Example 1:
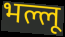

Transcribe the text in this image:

भल्लू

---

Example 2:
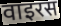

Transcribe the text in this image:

वाइरस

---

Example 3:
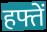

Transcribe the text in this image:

हफ्तें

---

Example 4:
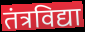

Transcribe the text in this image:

तंत्रविद्या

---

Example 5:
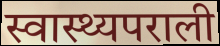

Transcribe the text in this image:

स्वास्थ्यपराली